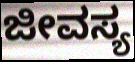
ಜೀವಸ್ಯ